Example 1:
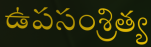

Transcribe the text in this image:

ఉపసంశ్రిత్య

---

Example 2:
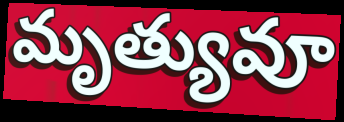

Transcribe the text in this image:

మృత్యువూ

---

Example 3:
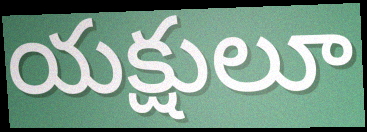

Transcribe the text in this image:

యక్షులూ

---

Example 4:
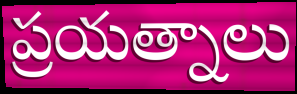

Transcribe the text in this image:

ప్రయత్నాలు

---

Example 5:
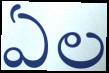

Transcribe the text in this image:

ఏల